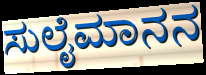
ಸುಲೈಮಾನನ